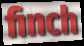
finch